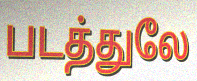
படத்துலே